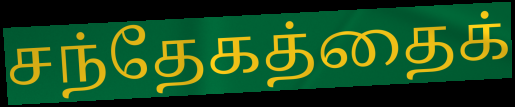
சந்தேகத்தைக்